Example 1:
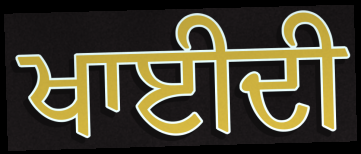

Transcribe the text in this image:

ਖਾਈਦੀ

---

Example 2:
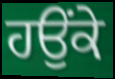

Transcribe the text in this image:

ਹਉਂਕੇ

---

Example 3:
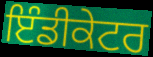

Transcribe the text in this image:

ਇੰਡੀਕੇਟਰ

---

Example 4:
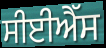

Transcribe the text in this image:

ਸੀਈਐੱਸ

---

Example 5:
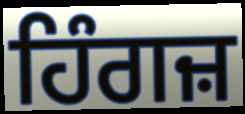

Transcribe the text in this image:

ਹਿੰਗਜ਼